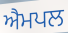
ਐਮਪਲ